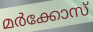
മർക്കോസ്